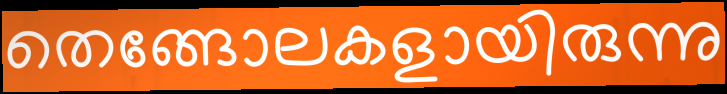
തെങ്ങോലകളായിരുന്നു